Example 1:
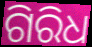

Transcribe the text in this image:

ଗିରିଧ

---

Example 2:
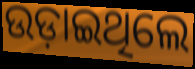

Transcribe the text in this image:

ଉଡ଼ାଇଥିଲେ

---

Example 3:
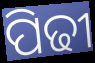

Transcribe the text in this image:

ପିଢୀ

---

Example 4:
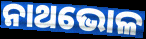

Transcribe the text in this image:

ନାଥଭୋଳ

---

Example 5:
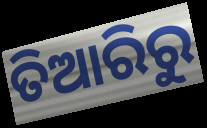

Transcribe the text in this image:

ତିଆରିରୁ